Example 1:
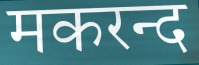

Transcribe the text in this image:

मकरन्द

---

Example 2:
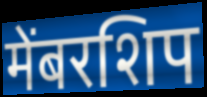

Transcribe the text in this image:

मेंबरशिप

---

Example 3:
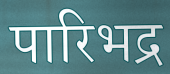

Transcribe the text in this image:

पारिभद्र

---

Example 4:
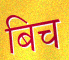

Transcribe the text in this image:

बिच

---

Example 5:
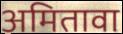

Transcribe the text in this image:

अमितावा